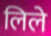
लिले